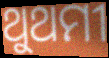
ଥୁଥମୀ